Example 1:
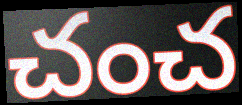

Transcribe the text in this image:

చంచ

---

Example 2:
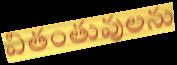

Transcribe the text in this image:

వితంతువులను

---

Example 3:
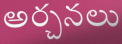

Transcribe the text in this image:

అర్చనలు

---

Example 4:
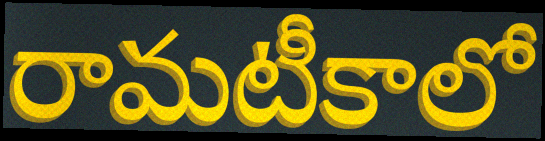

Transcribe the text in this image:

రామటీకాలో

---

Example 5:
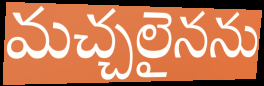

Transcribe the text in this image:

మచ్చలైనను